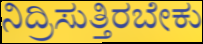
ನಿದ್ರಿಸುತ್ತಿರಬೇಕು